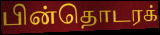
பின்தொடரக்